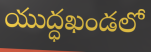
యుద్ధఖండలో